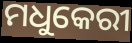
ମଧୁକେରୀ